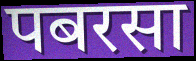
पबरसा